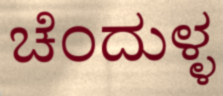
ಚೆಂದುಳ್ಳ